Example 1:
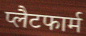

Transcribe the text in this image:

प्लैटफार्म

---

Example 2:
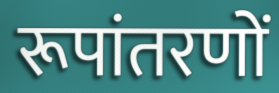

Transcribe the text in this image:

रूपांतरणों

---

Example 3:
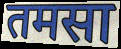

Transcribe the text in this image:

तमसा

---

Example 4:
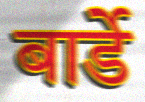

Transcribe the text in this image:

बार्डे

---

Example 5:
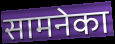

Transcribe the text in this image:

सामनेका